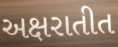
અક્ષરાતીત